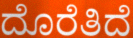
ದೊರೆತಿದೆ